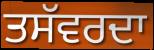
ਤਸੱਵਰਦਾ